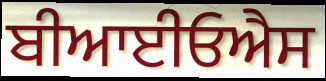
ਬੀਆਈਓਐਸ